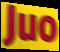
Juo